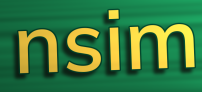
nsim